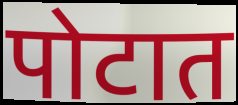
पोटात